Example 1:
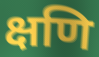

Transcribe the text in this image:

क्षणि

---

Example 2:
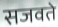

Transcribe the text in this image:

सजवते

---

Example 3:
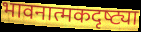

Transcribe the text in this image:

भावनात्मकदृष्ट्या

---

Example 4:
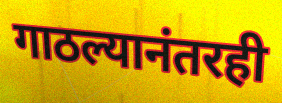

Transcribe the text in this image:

गाठल्यानंतरही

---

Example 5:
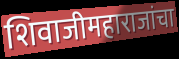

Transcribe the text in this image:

शिवाजीमहाराजांचा